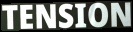
TENSION